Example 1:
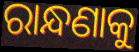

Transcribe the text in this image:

ରାନ୍ଧଣାକୁ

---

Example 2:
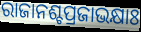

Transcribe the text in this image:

ରାଜାନଶ୍ଚପ୍ରଜାଭକ୍ଷାଃ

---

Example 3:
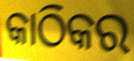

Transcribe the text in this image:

କାଠିକର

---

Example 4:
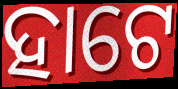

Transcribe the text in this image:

ହାଟେ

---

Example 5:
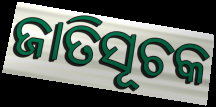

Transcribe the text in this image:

ଜାତିସୂଚକ